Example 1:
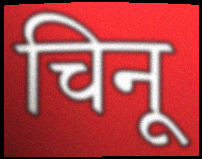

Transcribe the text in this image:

चिनू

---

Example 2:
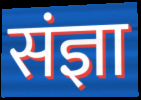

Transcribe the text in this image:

संज्ञा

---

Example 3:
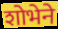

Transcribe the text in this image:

शोभेने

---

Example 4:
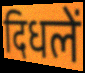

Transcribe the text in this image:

दिधलें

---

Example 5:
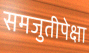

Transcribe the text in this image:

समजुतीपेक्षा